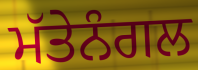
ਮੱਤੇਨੰਗਲ